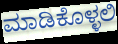
ಮಾಡಿಕೊಳ್ಳಲಿ